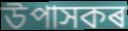
উপাসকৰ